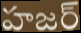
హజర్